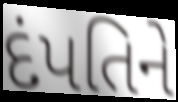
દંપતિને